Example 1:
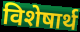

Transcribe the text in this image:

विशेषार्थ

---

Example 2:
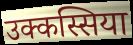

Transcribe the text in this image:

उक्कस्सिया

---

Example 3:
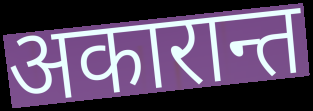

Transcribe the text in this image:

अकारान्त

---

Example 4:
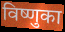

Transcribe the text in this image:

विष्णुका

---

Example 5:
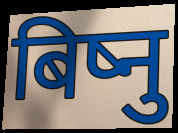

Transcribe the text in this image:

बिष्नु